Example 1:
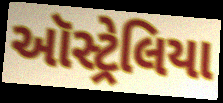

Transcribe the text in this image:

ઑસ્ટ્રેલિયા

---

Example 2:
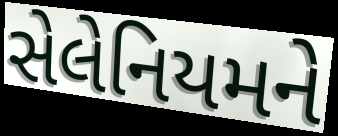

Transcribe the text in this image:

સેલેનિયમને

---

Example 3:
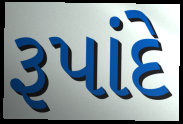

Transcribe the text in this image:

રૂપાંદે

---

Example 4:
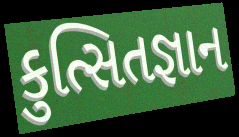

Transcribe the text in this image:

કુત્સિતજ્ઞાન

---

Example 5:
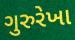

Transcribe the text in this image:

ગુરુરેખા